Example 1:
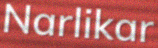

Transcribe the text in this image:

Narlikar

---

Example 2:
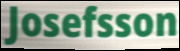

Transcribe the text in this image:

Josefsson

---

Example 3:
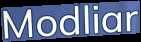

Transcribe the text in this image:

Modliar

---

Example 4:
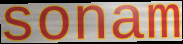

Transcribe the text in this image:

sonam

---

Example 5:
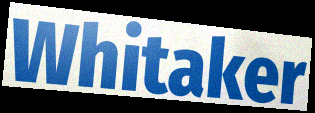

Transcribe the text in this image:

Whitaker